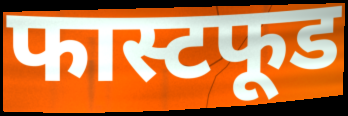
फास्टफूड